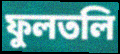
ফুলতলি